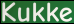
Kukke